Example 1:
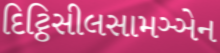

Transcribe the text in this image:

દિટ્ઠિસીલસામઞ્ઞેન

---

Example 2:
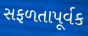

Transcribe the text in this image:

સફળતાપૂર્વક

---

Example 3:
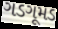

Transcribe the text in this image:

ગડગૂમડ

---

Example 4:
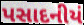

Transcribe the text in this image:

પસાદનીયં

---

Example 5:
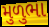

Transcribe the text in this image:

મુળુભા